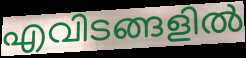
എവിടങ്ങളിൽ